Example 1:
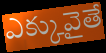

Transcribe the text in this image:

ఎక్కువైతే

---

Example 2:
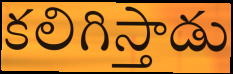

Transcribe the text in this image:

కలిగిస్తాడు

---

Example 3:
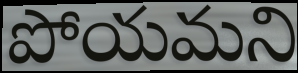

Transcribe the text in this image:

పోయమని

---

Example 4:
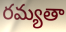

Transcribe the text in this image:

రమ్యతా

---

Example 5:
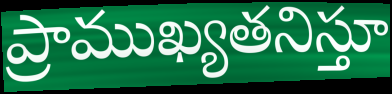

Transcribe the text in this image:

ప్రాముఖ్యతనిస్తూ